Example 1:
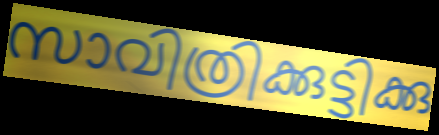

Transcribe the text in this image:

സാവിത്രിക്കുട്ടിക്കു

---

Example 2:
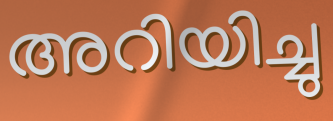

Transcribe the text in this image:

അറിയിച്ചു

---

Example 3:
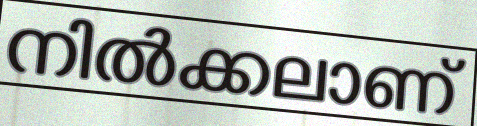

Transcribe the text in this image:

നിൽക്കലാണ്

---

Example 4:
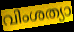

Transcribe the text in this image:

വിംശത്യാ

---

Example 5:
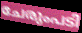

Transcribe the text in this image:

ചേരുംപടി